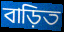
বাড়িত